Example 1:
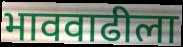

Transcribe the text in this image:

भाववाढीला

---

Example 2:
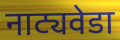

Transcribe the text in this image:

नाट्यवेडा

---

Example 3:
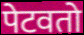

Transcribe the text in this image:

पेटवतो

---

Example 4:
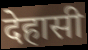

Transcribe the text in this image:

देहासी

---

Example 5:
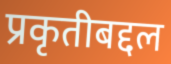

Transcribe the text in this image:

प्रकृतीबद्दल